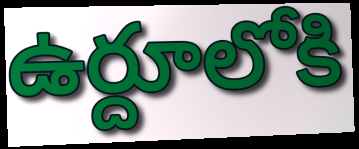
ఉర్దూలోకి